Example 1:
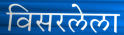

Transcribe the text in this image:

विसरलेला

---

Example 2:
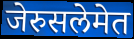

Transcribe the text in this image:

जेरुसलेमेत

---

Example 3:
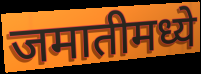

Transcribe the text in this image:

जमातीमध्ये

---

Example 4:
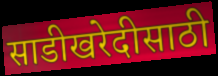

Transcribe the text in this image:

साडीखरेदीसाठी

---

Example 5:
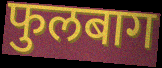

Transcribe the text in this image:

फुलबाग